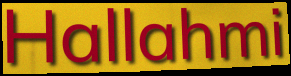
Hallahmi